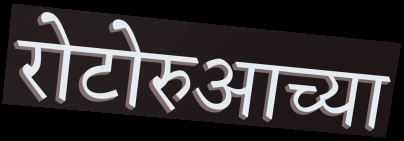
रोटोरुआच्या